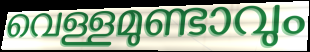
വെള്ളമുണ്ടാവും